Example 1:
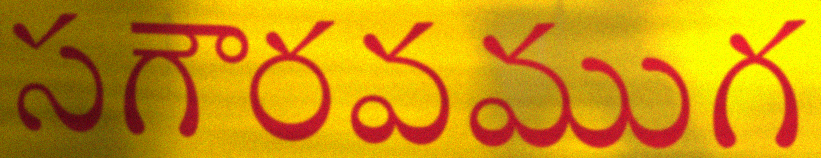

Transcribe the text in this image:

సగౌరవముగ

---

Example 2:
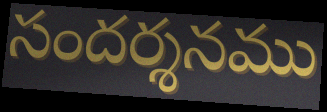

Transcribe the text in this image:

సందర్శనము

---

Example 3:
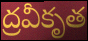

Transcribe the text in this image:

ద్రవీకృత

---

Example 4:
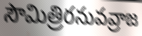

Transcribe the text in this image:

సౌమిత్రిరనువవ్రాజ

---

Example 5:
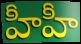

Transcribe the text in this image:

హీహీ